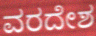
ವರದೇಶ